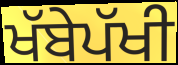
ਖੱਬੇਪੱਖੀ